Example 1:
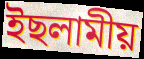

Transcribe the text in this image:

ইছলামীয়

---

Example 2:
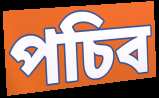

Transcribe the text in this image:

পচিব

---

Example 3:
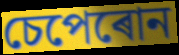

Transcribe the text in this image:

চেপেৰোন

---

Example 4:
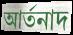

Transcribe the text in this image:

আৰ্তনাদ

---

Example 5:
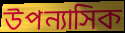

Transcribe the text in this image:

উপন্যাসিক